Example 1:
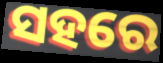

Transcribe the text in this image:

ସହରେ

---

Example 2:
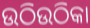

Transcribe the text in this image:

ଉଠିଉଠିକା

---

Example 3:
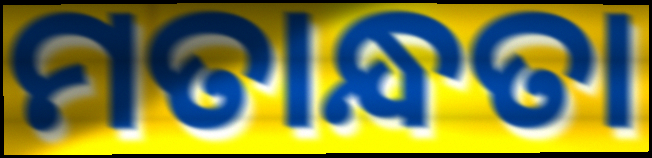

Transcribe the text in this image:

ମତାନ୍ଧତା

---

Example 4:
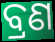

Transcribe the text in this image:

ବ୍ରଣ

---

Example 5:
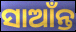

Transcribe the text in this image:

ସାଆଁନ୍ତ